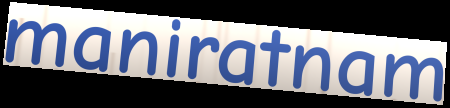
maniratnam